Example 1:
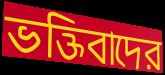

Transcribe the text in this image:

ভক্তিবাদের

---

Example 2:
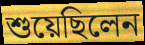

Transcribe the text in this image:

শুয়েছিলেন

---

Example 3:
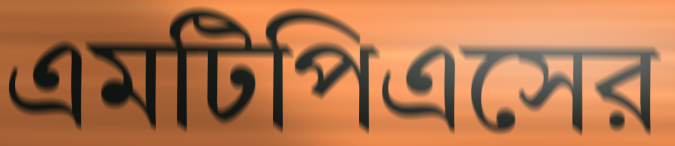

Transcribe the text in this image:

এমটিপিএসের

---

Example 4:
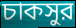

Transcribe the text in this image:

চাকসুর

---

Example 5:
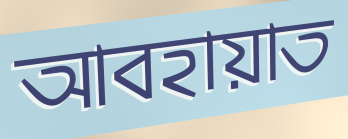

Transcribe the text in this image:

আবহায়াত